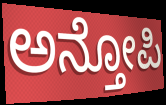
ಅನ್ತೋಪಿ